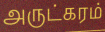
அருட்கரம்